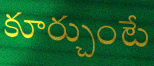
కూర్చుంటే